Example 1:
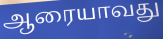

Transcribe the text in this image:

ஆரையாவது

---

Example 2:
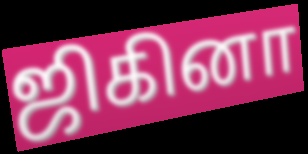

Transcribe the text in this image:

ஜிகினா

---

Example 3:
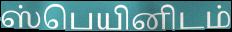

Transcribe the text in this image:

ஸ்பெயினிடம்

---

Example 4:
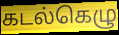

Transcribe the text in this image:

கடல்கெழு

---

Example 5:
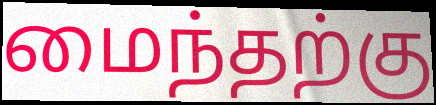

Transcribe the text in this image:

மைந்தற்கு